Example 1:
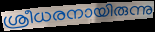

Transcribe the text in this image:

ശ്രീധരനായിരുന്നു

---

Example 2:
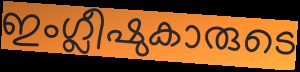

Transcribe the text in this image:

ഇംഗ്ലീഷുകാരുടെ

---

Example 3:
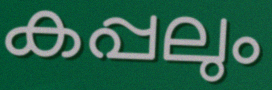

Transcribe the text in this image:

കപ്പലും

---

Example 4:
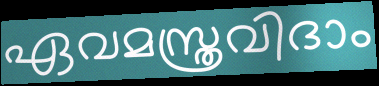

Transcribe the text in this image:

ഏവമസ്ത്രവിദാം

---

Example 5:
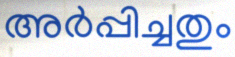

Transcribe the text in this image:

അർപ്പിച്ചതും